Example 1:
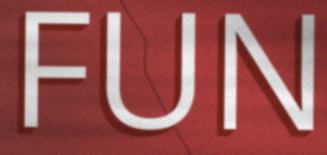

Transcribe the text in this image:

FUN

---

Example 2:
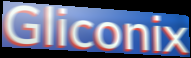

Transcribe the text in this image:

Gliconix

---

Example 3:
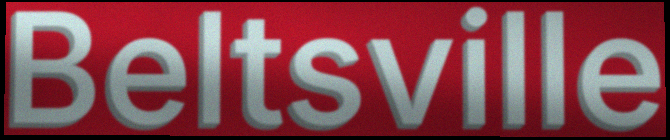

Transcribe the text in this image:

Beltsville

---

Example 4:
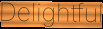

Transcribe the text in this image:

Delightful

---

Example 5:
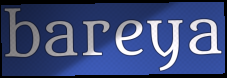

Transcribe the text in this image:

bareya